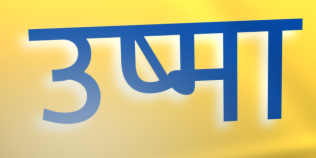
उष्मा